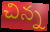
చిన్న